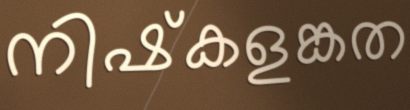
നിഷ്‌കളങ്കത